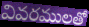
వివరములతో